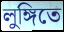
লুঙ্গিতে